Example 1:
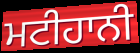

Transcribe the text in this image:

ਮਟੀਹਾਨੀ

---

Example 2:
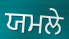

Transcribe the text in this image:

ਯਮਲੇ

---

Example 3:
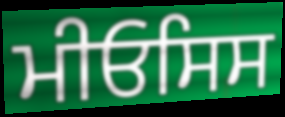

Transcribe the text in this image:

ਮੀਓਸਿਸ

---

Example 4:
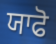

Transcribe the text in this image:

ਯਾਫੋ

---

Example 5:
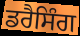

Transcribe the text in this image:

ਡਰੈਸਿੰਗ